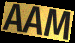
AAM